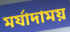
মর্যাদাময়